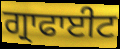
ਗ੍ਰਾਫਾਈਟ